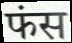
फंस